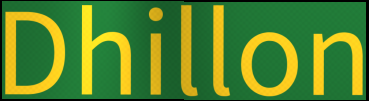
Dhillon